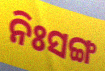
ନିଃସଙ୍ଗ